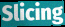
Slicing